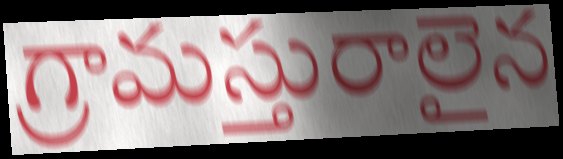
గ్రామస్తురాలైన